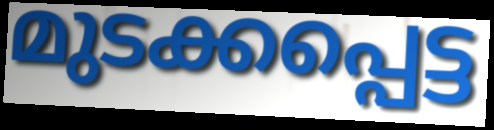
മുടക്കപ്പെട്ട